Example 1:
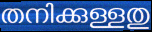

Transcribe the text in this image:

തനിക്കുള്ളതു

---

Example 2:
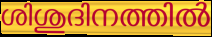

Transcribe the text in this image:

ശിശുദിനത്തിൽ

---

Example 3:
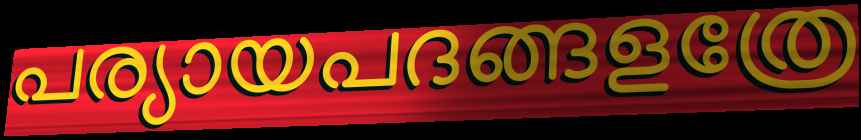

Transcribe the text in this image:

പര്യായപദങ്ങളത്രേ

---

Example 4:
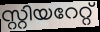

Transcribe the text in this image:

സ്റ്റിയറേറ്റ്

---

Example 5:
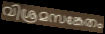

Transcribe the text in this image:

വിശ്രമസങ്കേതം